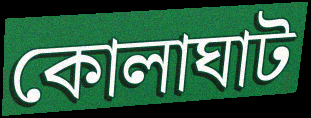
কোলাঘাট